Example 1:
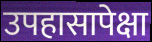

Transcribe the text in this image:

उपहासापेक्षा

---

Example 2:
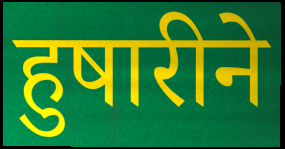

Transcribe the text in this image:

हुषारीने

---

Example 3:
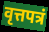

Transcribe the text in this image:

वृत्तपत्रं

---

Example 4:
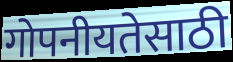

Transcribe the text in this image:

गोपनीयतेसाठी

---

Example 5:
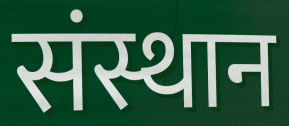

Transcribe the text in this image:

संस्थान